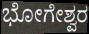
ಭೋಗೇಶ್ವರ